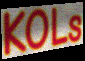
KOLs